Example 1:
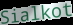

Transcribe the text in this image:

Sialkot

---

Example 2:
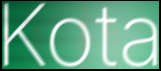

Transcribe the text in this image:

Kota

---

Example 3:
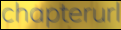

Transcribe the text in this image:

chapterurl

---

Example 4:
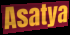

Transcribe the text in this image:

Asatya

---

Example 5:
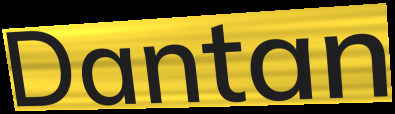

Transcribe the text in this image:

Dantan